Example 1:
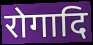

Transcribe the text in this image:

रोगादि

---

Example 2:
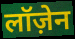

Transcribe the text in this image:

लॉज़ेन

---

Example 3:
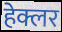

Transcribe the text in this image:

हेक्लर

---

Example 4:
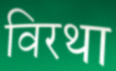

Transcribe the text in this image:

विरथा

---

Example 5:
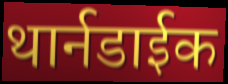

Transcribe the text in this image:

थार्नडाईक